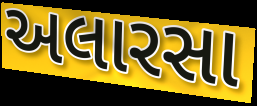
અલારસા